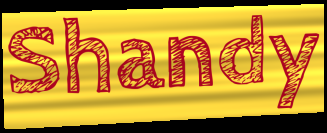
Shandy